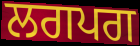
ਲਗਪਗ